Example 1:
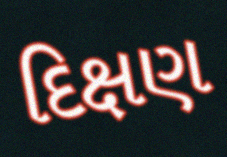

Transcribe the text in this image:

દિક્ષણ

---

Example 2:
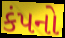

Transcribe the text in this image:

કંપનો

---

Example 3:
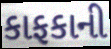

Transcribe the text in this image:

કાફકાની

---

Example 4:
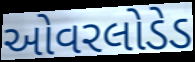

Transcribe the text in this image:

ઓવરલોડેડ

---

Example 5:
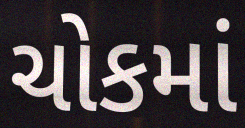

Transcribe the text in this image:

ચોકમાં